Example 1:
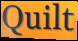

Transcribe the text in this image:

Quilt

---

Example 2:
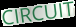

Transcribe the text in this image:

CIRCUIT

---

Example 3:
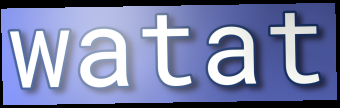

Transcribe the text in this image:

watat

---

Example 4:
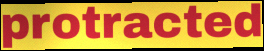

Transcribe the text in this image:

protracted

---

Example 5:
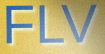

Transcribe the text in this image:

FLV